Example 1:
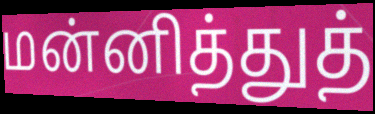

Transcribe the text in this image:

மன்னித்துத்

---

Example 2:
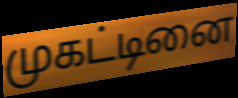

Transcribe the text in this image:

முகட்டினை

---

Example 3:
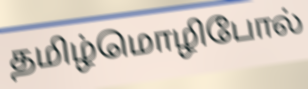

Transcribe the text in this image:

தமிழ்மொழிபோல்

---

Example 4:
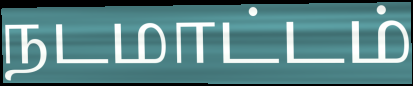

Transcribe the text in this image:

நடமாட்டம்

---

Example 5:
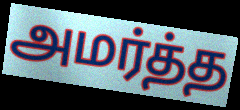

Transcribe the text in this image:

அமர்த்த